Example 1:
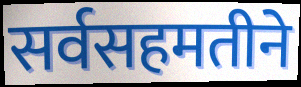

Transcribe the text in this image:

सर्वसहमतीने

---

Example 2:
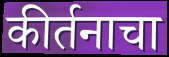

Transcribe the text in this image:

कीर्तनाचा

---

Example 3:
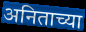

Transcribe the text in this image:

अनिताच्या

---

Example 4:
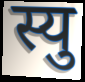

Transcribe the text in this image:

स्यु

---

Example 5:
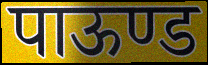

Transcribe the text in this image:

पाऊण्ड